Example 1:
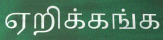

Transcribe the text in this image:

ஏறிக்கங்க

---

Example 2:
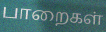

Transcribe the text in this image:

பாறைகள்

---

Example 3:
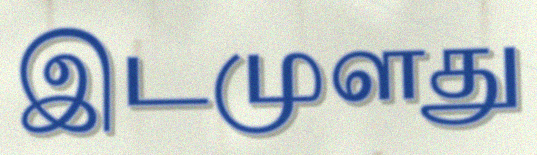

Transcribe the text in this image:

இடமுளது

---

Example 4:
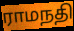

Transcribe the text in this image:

ராமநதி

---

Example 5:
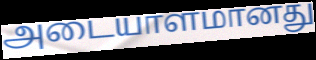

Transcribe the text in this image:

அடையாளமானது